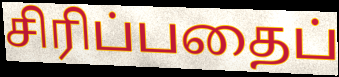
சிரிப்பதைப்